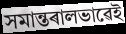
সমান্তৰালভাৱেই